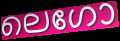
ലെഗോ